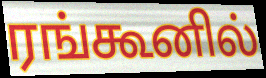
ரங்கூனில்